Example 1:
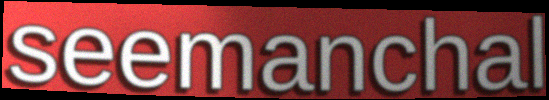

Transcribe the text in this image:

seemanchal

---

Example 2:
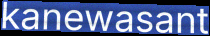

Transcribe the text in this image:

kanewasant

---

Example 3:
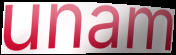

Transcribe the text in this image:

unam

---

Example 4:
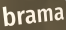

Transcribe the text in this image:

brama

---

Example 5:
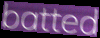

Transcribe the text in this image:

batted